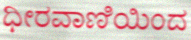
ಧೀರವಾಣಿಯಿಂದ